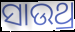
ସାଉଥ୍ର